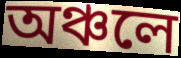
অঞ্চলে